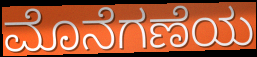
ಮೊನೆಗಣೆಯ